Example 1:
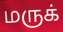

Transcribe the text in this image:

மருக்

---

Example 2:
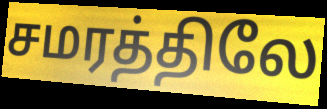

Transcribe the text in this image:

சமரத்திலே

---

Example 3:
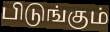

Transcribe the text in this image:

பிடுங்கும்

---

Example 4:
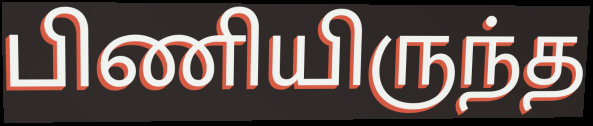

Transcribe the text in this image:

பிணியிருந்த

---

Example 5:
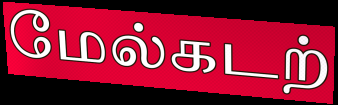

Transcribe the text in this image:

மேல்கடற்